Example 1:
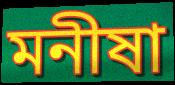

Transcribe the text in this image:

মনীষা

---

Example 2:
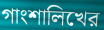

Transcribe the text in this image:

গাংশালিখের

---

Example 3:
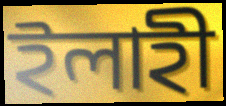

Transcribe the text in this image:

ইলাহী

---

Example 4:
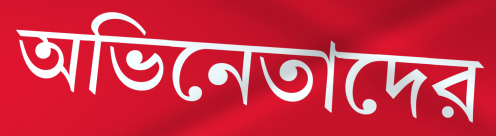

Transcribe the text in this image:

অভিনেতাদের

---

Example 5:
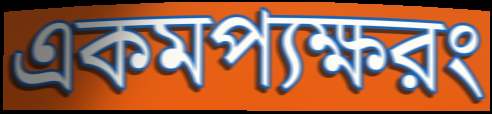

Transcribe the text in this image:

একমপ্যক্ষরং